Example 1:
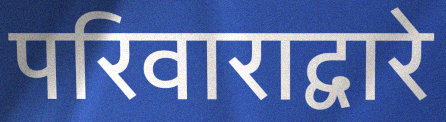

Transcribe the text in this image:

परिवाराद्वारे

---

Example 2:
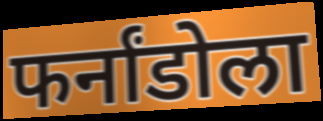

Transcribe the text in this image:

फर्नांडोला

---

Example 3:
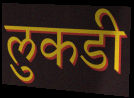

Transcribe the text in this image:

लुकडी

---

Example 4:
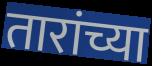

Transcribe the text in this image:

तारांच्या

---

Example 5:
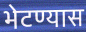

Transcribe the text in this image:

भेटण्यास